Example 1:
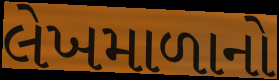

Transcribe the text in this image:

લેખમાળાનો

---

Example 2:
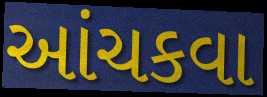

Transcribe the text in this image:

આંચકવા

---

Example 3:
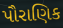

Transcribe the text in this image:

પૌરાણિક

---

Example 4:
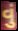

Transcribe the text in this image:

વું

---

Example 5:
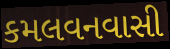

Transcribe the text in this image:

કમલવનવાસી